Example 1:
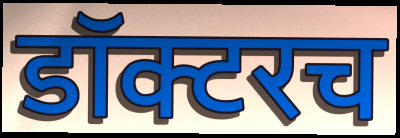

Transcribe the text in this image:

डॉक्टरच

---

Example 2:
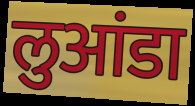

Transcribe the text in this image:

लुआंडा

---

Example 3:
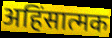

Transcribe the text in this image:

अहिंसात्मक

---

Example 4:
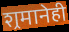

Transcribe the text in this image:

श्रमानेही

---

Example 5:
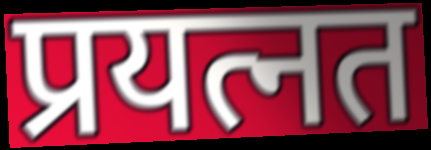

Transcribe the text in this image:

प्रयत्नत